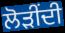
ਲੋੜੀਂਦੀ